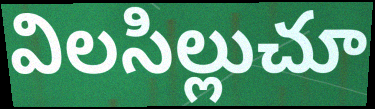
విలసిల్లుచూ